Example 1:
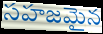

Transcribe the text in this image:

సహజమైన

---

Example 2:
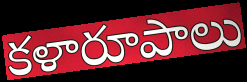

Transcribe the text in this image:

కళారూపాలు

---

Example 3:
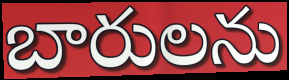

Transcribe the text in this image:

బారులను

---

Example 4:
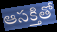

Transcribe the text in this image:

ఆసక్తితో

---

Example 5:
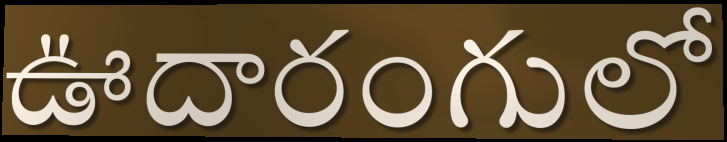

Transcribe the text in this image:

ఊదారంగులో